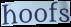
hoofs